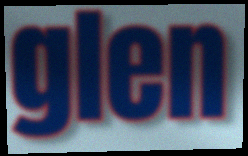
glen